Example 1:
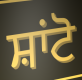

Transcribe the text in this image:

ਸ਼ਾਂਟੋ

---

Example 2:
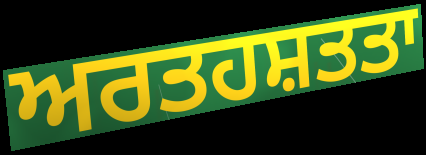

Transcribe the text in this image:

ਅਰਤਹਸ਼ਤਤਾ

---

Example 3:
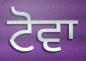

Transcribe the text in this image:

ਟੋਵਾ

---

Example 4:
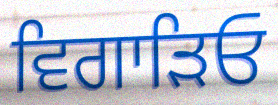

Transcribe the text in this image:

ਵਿਗਾੜਿਓ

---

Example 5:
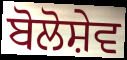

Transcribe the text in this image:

ਬੋਲੋਸ਼ੇਵ